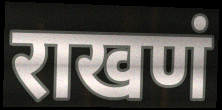
राखणं